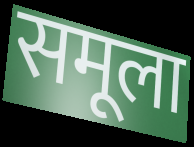
समूला